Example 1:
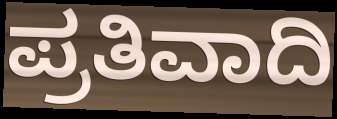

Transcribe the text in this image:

ಪ್ರತಿವಾದಿ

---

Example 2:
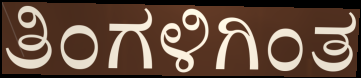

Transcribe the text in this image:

ತಿಂಗಳಿಗಿಂತ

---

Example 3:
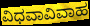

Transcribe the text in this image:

ವಿಧವಾವಿವಾಹ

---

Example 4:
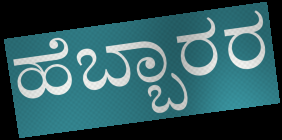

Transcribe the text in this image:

ಹೆಬ್ಬಾರರ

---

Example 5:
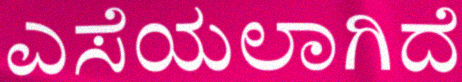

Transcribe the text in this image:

ಎಸೆಯಲಾಗಿದೆ